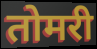
तोमरी